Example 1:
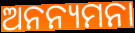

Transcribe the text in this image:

ଅନନ୍ୟମନା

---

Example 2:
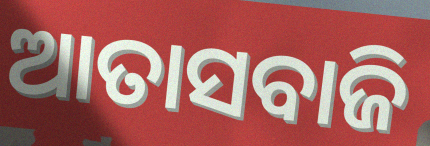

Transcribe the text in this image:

ଆତାସବାଜି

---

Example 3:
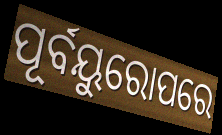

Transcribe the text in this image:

ପୂର୍ବୟୁରୋପରେ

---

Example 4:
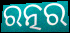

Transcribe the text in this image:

ରତ୍ନର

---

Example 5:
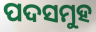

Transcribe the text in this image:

ପଦସମୁହ